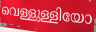
വെള്ളുള്ളിയോ